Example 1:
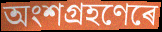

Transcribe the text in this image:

অংশগ্ৰহণেৰে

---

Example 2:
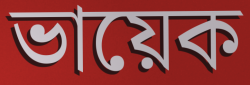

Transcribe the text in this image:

ভায়েক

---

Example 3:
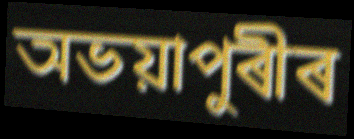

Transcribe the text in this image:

অভয়াপুৰীৰ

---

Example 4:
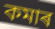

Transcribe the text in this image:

কমাৰ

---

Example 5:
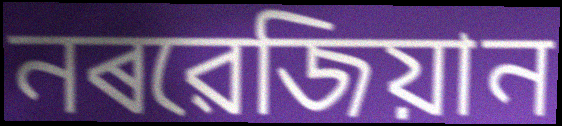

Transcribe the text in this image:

নৰৱেজিয়ান